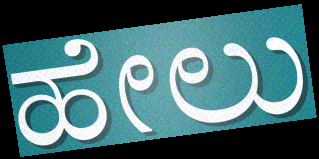
ಹೇಲು